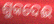
ଶୁକଦେଈ